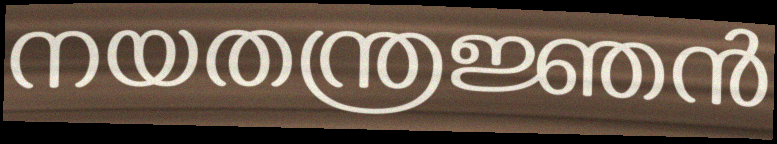
നയതന്ത്രജ്ഞൻ